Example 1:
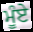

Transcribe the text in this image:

ਮੂੰਏ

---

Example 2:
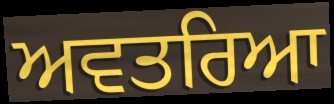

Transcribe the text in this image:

ਅਵਤਰਿਆ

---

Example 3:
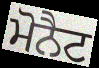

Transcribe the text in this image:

ਮੋਨੈਟ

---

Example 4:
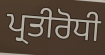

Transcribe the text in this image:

ਪ੍ਰਤੀਰੋਧੀ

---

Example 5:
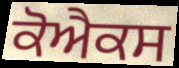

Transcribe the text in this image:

ਕੋਐਕਸ